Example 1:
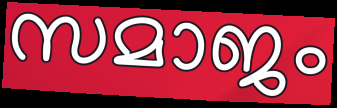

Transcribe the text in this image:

സമാജം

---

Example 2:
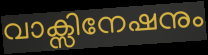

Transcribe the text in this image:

വാക്സിനേഷനും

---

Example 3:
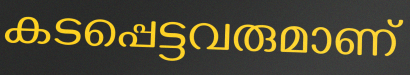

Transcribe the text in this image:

കടപ്പെട്ടവരുമാണ്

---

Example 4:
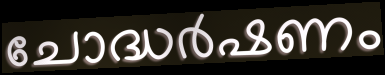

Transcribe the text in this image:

ചോദ്ധർഷണം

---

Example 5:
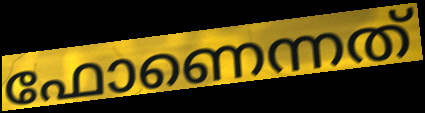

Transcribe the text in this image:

ഫോണെന്നത്